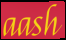
aash